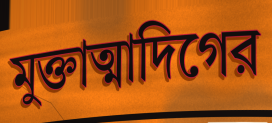
মুক্তাত্মাদিগের